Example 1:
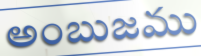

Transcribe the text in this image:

అంబుజము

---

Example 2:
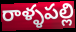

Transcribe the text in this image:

రాళ్ళపల్లి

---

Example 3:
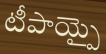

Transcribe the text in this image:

టీపాయ్పై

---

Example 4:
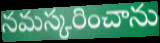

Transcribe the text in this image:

నమస్కరించాను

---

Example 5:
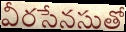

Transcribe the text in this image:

వీరసేనసుతో